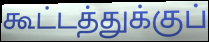
கூட்டத்துக்குப்